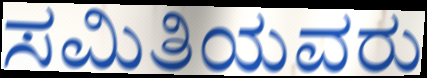
ಸಮಿತಿಯವರು